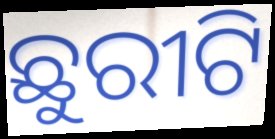
ଛୁରୀଟି